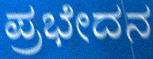
ಪ್ರಭೇದನ